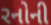
રનોની